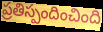
ప్రతిస్పందించింది